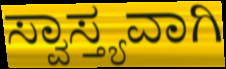
ಸ್ವಾಸ್ತ್ಯವಾಗಿ